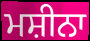
ਮਸ਼ੀਨਾ